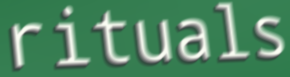
rituals